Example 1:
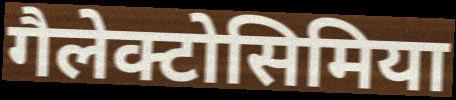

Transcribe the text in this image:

गैलेक्टोसिमिया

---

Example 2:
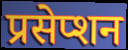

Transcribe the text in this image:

प्रसेप्शन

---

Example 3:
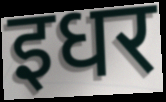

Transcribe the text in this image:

इधर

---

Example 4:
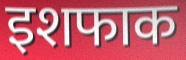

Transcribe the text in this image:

इशफाक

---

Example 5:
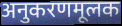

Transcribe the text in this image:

अनुकरणमूलक